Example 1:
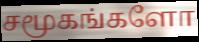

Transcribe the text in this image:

சமூகங்களோ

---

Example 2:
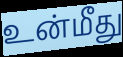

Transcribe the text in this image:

உன்மீது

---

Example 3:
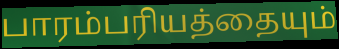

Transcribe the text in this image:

பாரம்பரியத்தையும்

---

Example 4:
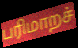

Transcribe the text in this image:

பரிமாறச்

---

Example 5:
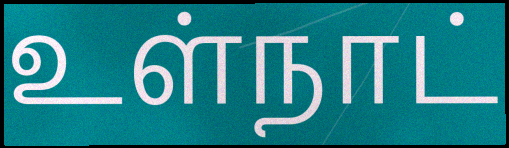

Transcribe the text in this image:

உள்நாட்